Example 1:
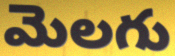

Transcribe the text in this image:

మెలగు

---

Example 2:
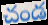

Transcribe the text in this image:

చండ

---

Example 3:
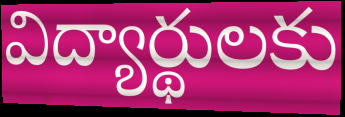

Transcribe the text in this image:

విద్యార్థులకు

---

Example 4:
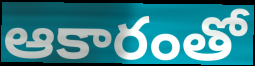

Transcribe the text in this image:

ఆకారంతో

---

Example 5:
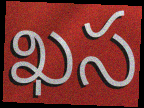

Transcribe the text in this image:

ఖస